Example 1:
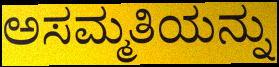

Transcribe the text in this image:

ಅಸಮ್ಮತಿಯನ್ನು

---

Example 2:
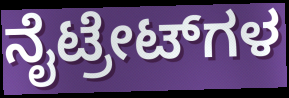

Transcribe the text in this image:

ನೈಟ್ರೇಟ್‌ಗಳ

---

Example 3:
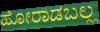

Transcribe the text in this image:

ಹೋರಾಡಬಲ್ಲ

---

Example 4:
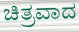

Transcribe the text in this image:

ಚಿತ್ರವಾದ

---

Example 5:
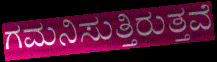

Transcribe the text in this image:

ಗಮನಿಸುತ್ತಿರುತ್ತವೆ